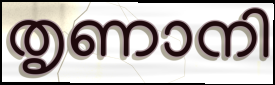
തൃണാനി